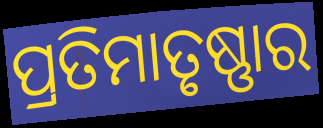
ପ୍ରତିମାତୃଷ୍ଣାର